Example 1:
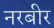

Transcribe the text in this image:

नरबीर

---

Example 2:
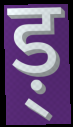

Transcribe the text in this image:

ड़्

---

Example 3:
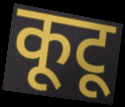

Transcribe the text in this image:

कूटू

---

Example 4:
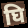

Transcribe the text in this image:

घि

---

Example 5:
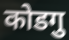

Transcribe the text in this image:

कोडगु